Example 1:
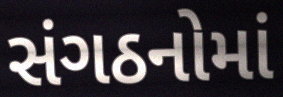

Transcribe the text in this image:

સંગઠનોમાં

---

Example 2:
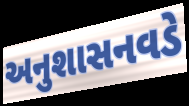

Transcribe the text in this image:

અનુશાસનવડે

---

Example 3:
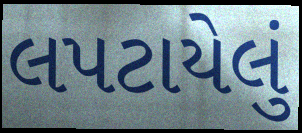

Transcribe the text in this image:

લપટાયેલું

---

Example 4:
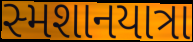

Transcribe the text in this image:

સ્મશાનયાત્રા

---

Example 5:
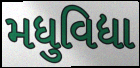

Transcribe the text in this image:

મધુવિદ્યા